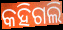
କହିଗଲି